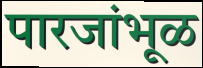
पारजांभूळ